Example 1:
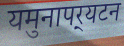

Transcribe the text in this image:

यमुनापर्यटन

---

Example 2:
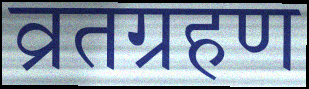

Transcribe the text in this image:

व्रतग्रहण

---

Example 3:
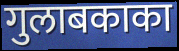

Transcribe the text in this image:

गुलाबकाका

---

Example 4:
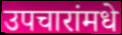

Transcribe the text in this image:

उपचारांमधे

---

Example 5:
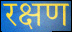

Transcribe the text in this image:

रक्षण